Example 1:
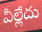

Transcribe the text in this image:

వీల్లేదు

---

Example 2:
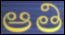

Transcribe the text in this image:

ఆతి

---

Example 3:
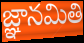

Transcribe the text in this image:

జ్ఞానమితి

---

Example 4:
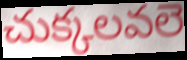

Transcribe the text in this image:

చుక్కలవలె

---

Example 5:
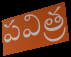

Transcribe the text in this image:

పవిత్ర